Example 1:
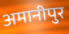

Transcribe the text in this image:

अमानीपुर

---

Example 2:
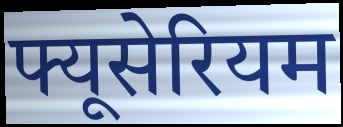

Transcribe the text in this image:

फ्यूसेरियम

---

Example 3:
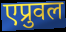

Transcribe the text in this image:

एप्रुवल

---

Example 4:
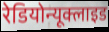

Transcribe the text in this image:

रेडियोन्यूक्लाइड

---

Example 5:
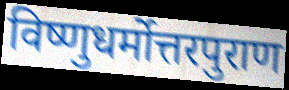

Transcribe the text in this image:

विष्णुधर्मोत्तरपुराण